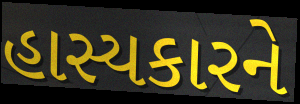
હાસ્યકારને